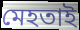
মেহতাই